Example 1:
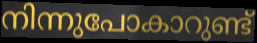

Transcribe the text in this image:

നിന്നുപോകാറുണ്ട്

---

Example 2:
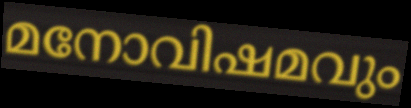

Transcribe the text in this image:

മനോവിഷമവും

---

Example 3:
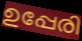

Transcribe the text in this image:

ഉപ്പേരി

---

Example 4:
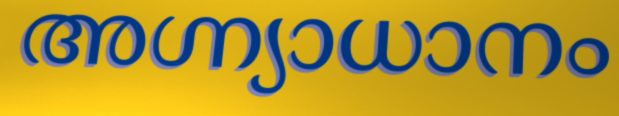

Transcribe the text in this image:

അഗ്ന്യാധാനം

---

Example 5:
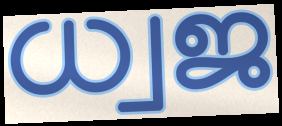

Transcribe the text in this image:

ധ്വജ